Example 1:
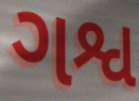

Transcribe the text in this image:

ગશ્વ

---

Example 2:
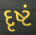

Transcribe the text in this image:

દૃષ્ટં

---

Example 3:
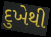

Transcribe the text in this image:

દુખેથી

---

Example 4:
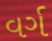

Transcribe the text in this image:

વર્ગ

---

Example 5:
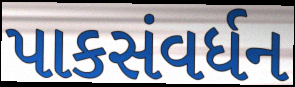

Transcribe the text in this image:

પાકસંવર્ધન